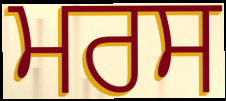
ਮਰਸ